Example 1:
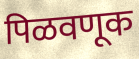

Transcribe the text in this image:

पिळवणूक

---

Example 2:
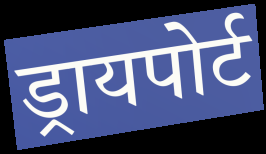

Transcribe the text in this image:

ड्रायपोर्ट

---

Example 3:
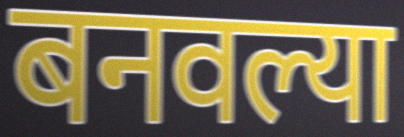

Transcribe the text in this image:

बनवल्या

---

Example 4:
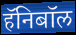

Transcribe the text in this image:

हॅनिबॉल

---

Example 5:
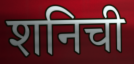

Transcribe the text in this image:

शनिची